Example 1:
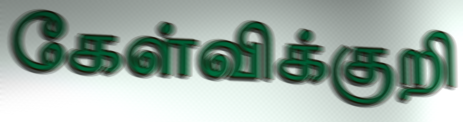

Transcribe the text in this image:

கேள்விக்குறி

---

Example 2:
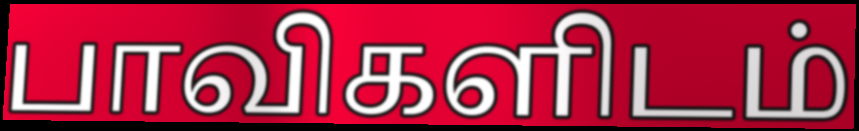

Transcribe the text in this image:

பாவிகளிடம்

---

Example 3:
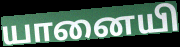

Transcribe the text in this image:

யானையி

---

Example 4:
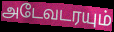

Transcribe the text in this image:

அடேவடரயும்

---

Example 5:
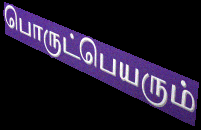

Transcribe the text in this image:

பொருட்பெயரும்